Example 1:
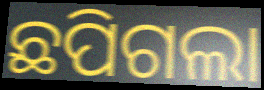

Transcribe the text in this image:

ଛପିଗଲା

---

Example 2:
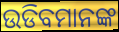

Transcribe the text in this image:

ଉଡିବମାନଙ୍କ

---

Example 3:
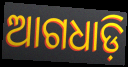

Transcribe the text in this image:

ଆଗଧାଡ଼ି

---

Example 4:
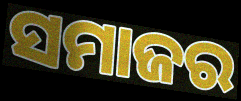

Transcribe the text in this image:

ସମାଜର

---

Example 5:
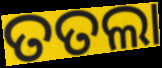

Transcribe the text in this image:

ତତଲା